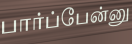
பார்ப்பேன்னு